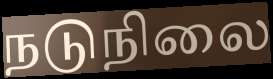
நடுநிலை